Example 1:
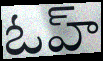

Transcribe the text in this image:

ఓహ్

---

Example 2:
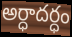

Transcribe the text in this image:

అర్ధాదర్ధం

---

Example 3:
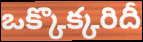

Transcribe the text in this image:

ఒక్కొక్కరిదీ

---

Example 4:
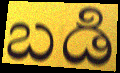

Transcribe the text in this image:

బడి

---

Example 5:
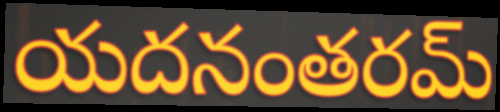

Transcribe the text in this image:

యదనంతరమ్